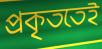
প্ৰকৃততেই